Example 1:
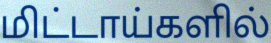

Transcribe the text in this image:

மிட்டாய்களில்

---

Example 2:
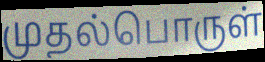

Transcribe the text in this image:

முதல்பொருள்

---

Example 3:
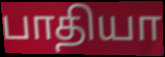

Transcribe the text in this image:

பாதியா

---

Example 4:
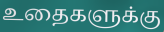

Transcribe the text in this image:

உதைகளுக்கு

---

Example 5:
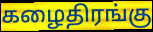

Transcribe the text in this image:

கழைதிரங்கு